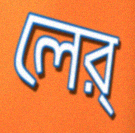
লের্